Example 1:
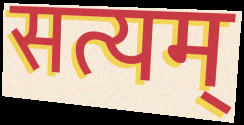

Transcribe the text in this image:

सत्यम्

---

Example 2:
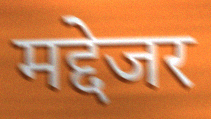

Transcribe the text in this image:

मद्देजर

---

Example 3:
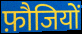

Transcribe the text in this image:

फ़ौजियों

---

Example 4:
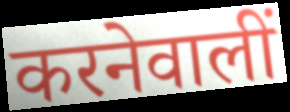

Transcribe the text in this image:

करनेवालीं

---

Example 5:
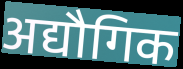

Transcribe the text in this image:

अद्यौगिक